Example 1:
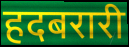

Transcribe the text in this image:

हदबरारी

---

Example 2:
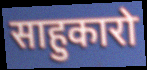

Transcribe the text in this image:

साहुकारो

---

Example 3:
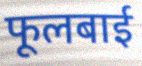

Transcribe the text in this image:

फूलबाई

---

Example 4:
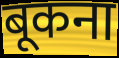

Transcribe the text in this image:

बूकना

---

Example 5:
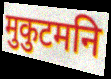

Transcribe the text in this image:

मुकुटमनि